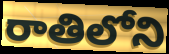
రాతిలోని